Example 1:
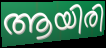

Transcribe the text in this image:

ആയിരി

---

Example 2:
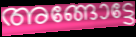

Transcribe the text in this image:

അങ്ങോട്ടേ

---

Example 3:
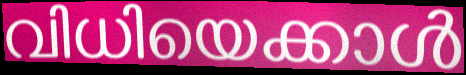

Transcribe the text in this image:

വിധിയെക്കാൾ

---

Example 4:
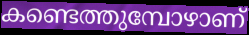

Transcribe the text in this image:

കണ്ടെത്തുമ്പോഴാണ്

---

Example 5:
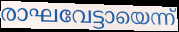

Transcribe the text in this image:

രാഘവേട്ടായെന്ന്